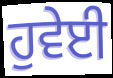
ਹੁਵੇਈ